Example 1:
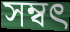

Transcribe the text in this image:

সম্বৎ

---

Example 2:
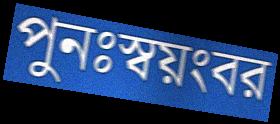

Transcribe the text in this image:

পুনঃস্বয়ংবর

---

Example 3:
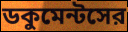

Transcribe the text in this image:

ডকুমেন্টসের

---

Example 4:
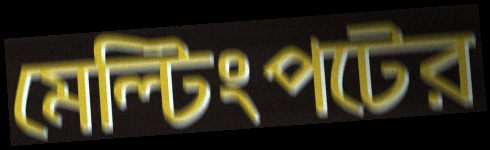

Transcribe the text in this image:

মেল্টিংপটের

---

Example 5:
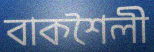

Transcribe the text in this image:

বাকশৈলী